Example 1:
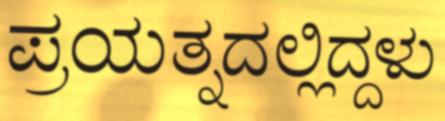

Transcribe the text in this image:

ಪ್ರಯತ್ನದಲ್ಲಿದ್ದಳು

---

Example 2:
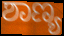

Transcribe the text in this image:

ಶಾಣ್ಯ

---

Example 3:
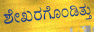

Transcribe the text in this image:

ಶೇಖರಗೊಂಡಿತ್ತು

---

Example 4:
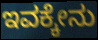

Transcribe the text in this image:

ಇವಕ್ಕೇನು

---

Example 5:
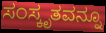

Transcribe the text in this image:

ಸಂಸ್ಕೃತವನ್ನೂ